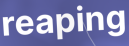
reaping